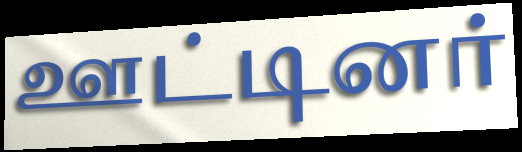
ஊட்டினர்